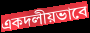
একদলীয়ভাবে